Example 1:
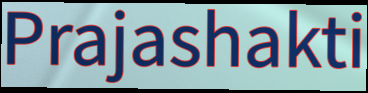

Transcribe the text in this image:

Prajashakti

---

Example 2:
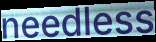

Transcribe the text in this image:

needless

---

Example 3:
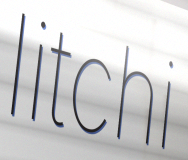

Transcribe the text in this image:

litchi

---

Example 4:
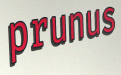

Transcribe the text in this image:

prunus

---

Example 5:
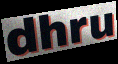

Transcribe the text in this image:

dhru